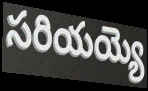
సరియయ్యె